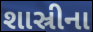
શાસ્રીના